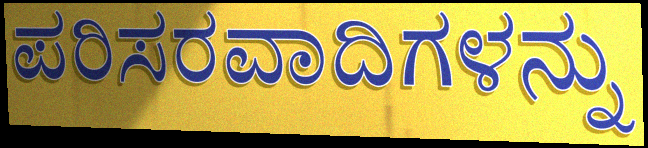
ಪರಿಸರವಾದಿಗಳನ್ನು